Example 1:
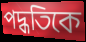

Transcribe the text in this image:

পদ্ধতিকে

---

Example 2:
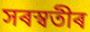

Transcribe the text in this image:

সৰস্বতীৰ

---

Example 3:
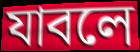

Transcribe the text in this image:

যাবলে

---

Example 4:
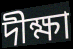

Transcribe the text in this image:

দীক্ষা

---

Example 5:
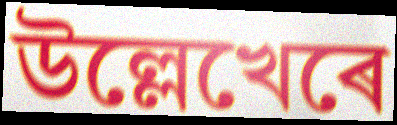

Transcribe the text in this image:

উল্লেখেৰে